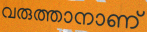
വരുത്താനാണ്